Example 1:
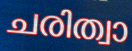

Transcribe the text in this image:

ചരിത്വാ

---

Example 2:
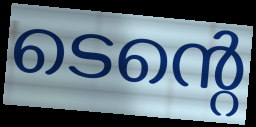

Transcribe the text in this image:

ടെന്റെ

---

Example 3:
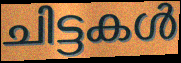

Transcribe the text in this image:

ചിട്ടകൾ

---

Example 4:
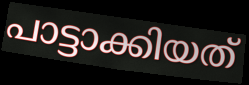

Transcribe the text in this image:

പാട്ടാക്കിയത്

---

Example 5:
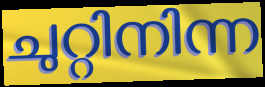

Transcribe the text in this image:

ചുറ്റിനിന്ന